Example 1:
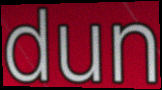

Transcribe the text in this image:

dun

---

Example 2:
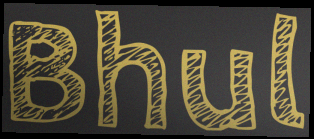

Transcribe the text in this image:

Bhul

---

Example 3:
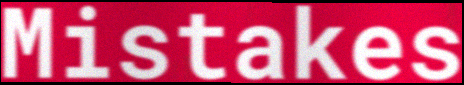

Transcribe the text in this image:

Mistakes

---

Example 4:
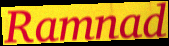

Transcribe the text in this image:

Ramnad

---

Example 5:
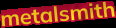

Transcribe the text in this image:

metalsmith